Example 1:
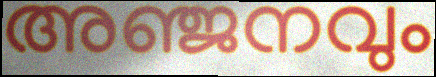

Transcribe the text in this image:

അഞ്ജനവും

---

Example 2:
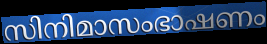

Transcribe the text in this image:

സിനിമാസംഭാഷണം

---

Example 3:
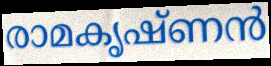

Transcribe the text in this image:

രാമകൃഷ്ണൻ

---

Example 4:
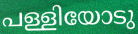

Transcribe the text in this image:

പള്ളിയോടു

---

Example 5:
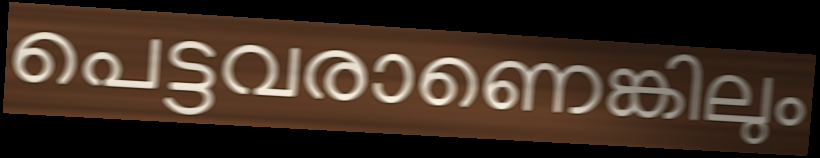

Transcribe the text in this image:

പെട്ടവരാണെങ്കിലും